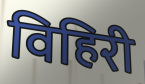
विहिरी